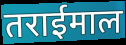
तराईमाल